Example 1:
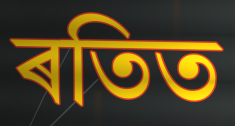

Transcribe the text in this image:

ৰতিত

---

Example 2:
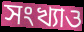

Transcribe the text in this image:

সংখ্যাও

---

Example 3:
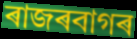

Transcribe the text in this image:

ৰাজৰবাগৰ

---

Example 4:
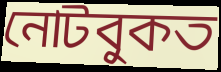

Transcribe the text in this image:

নোটবুকত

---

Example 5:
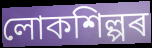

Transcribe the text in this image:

লোকশিল্পৰ